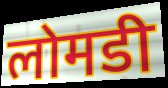
लोमडी